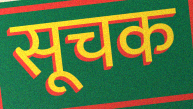
सूचक